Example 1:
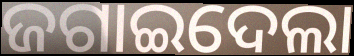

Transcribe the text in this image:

ଜଗାଇଦେଲା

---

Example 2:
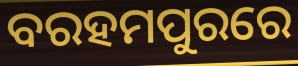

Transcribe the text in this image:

ବରହମପୁରରେ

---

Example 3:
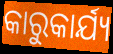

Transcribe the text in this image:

କାରୁକାର୍ଯ୍ୟ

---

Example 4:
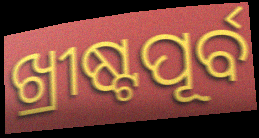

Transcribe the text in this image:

ଖ୍ରୀଷ୍ଟପୂର୍ବ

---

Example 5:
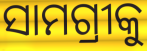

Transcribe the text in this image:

ସାମଗ୍ରୀକୁ